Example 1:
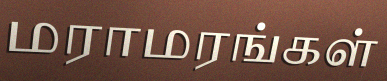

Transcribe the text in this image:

மராமரங்கள்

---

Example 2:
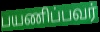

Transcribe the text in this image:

பயணிப்பவர்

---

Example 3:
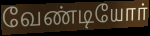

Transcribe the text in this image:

வேண்டியோர்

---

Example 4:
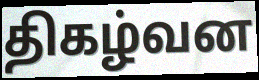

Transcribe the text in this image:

திகழ்வன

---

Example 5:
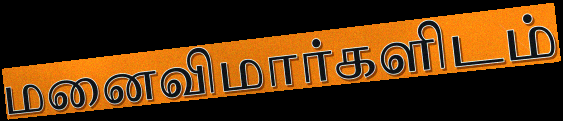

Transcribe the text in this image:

மனைவிமார்களிடம்